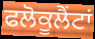
ਫਲੋਕੂਲੈਂਟਾਂ